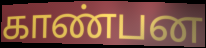
காண்பன